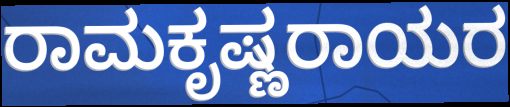
ರಾಮಕೃಷ್ಣರಾಯರ